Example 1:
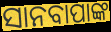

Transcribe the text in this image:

ସାନବାପାଙ୍କ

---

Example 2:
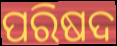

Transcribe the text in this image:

ପରିଷଦ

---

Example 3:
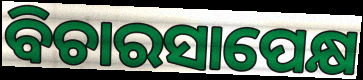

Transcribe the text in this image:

ବିଚାରସାପେକ୍ଷ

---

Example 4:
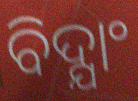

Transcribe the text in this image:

ବିଦ୍ଯାଂ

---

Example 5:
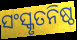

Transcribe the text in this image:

ସଂସ୍କୃତନିଷ୍ଠ